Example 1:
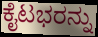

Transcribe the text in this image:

ಕೈಟಭರನ್ನು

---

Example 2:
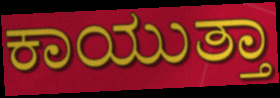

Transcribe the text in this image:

ಕಾಯುತ್ತಾ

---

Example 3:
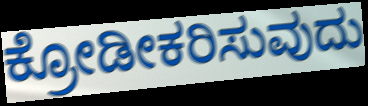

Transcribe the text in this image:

ಕ್ರೋಡೀಕರಿಸುವುದು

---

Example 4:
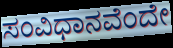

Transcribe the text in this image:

ಸಂವಿಧಾನವೆಂದೇ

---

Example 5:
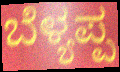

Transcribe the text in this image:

ಬೆಳ್ಯಪ್ಪ